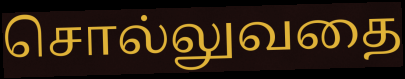
சொல்லுவதை